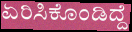
ಏರಿಸಿಕೊಂಡಿದ್ದೆ